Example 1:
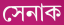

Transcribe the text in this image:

সেনাক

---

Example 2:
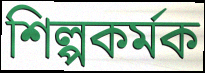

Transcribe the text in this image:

শিল্পকৰ্মক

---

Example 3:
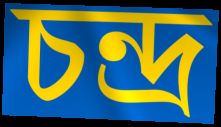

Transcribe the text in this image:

চন্দ্ৰ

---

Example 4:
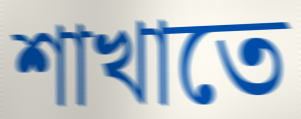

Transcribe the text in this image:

শাখাতে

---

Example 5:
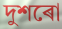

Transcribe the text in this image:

দুশৰো